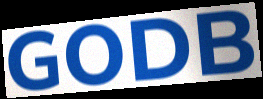
GODB